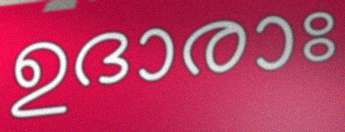
ഉദാരാഃ